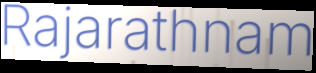
Rajarathnam